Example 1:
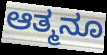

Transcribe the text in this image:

ಆತ್ಮನೂ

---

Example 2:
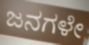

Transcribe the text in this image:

ಜನಗಳೇ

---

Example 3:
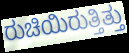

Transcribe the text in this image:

ರುಚಿಯಿರುತ್ತಿತ್ತು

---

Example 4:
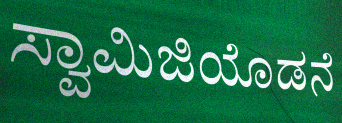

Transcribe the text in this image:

ಸ್ವಾಮಿಜಿಯೊಡನೆ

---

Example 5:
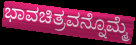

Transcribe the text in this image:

ಭಾವಚಿತ್ರವನ್ನೊಮ್ಮೆ